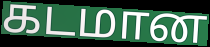
கடமான